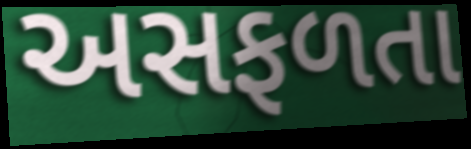
અસફળતા